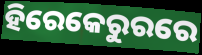
ହିରେକେରୁରରେ